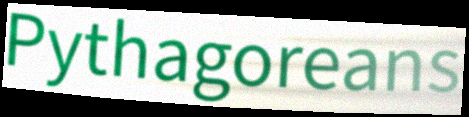
Pythagoreans